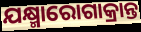
ଯକ୍ଷ୍ମାରୋଗାକ୍ରାନ୍ତ